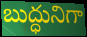
బుద్ధునిగా